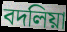
বদলিয়া